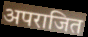
अपराजित